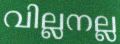
വില്ലനല്ല